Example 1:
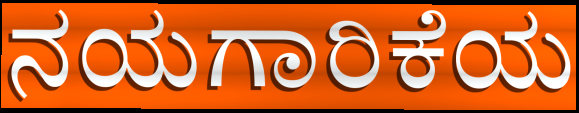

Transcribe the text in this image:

ನಯಗಾರಿಕೆಯ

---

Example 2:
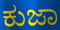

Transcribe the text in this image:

ಕುಜಾ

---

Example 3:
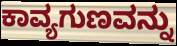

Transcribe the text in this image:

ಕಾವ್ಯಗುಣವನ್ನು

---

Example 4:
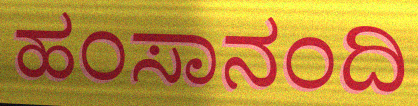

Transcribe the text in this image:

ಹಂಸಾನಂದಿ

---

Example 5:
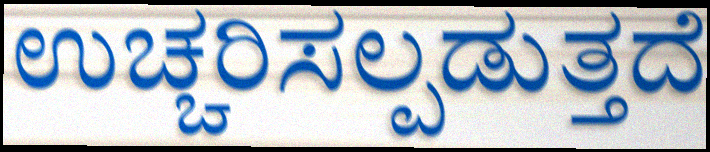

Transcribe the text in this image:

ಉಚ್ಚರಿಸಲ್ಪಡುತ್ತದೆ